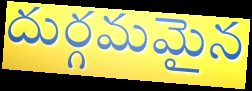
దుర్గమమైన